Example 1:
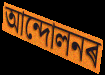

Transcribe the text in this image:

আন্দোলনৰ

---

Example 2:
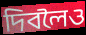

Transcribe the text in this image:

দিবলৈও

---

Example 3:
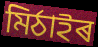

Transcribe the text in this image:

মিঠাইৰ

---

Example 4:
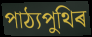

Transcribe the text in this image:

পাঠ্যপুথিৰ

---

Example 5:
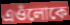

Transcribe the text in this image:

এওঁলোকে